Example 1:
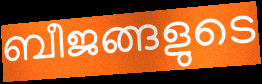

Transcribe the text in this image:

ബീജങ്ങളുടെ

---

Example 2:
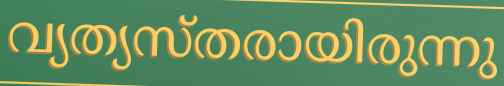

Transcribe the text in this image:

വ്യത്യസ്തരായിരുന്നു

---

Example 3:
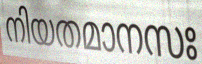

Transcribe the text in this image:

നിയതമാനസഃ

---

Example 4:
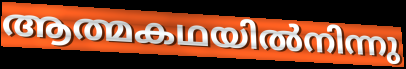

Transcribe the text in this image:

ആത്മകഥയിൽനിന്നു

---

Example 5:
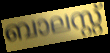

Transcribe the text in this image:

ബാലസ്റ്റ്